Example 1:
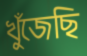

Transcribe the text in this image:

খুঁজেছি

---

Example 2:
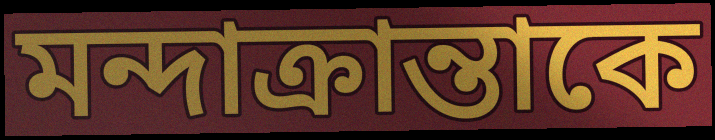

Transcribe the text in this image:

মন্দাক্রান্তাকে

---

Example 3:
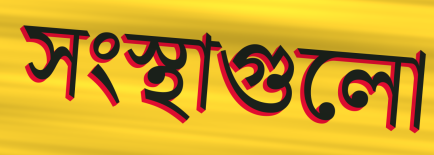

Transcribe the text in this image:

সংস্থাগুলো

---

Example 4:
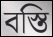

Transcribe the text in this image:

বস্তি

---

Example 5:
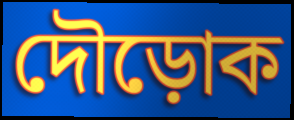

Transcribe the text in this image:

দৌড়োক